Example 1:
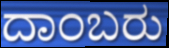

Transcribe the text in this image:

ದಾಂಬರು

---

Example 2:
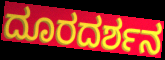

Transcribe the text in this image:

ದೂರದರ್ಶನ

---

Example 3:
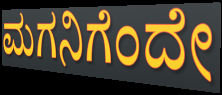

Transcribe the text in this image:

ಮಗನಿಗೆಂದೇ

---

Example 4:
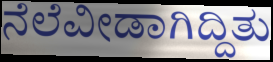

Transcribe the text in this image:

ನೆಲೆವೀಡಾಗಿದ್ದಿತು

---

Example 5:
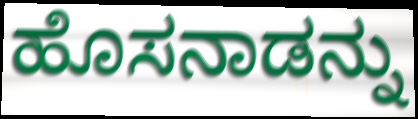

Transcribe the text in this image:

ಹೊಸನಾಡನ್ನು